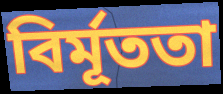
বির্মূততা